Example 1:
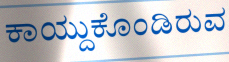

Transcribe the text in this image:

ಕಾಯ್ದುಕೊಂಡಿರುವ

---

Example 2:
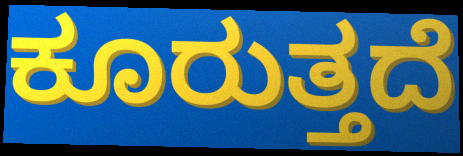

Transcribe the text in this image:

ಕೂರುತ್ತದೆ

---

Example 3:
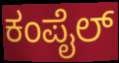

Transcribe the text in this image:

ಕಂಪೈಲ್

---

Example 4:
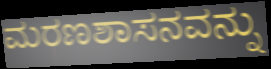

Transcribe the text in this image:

ಮರಣಶಾಸನವನ್ನು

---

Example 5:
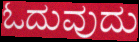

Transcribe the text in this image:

ಓದುವುದು